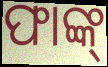
ଫାଙ୍କ୍